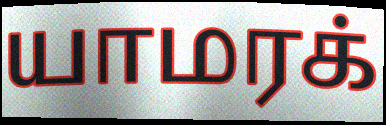
யாமரக்